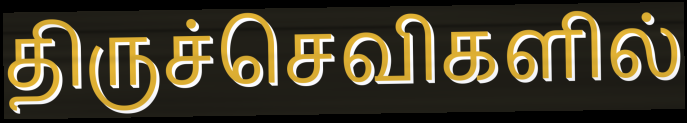
திருச்செவிகளில்